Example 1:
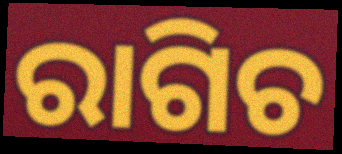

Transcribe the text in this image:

ରାଗିଚ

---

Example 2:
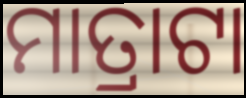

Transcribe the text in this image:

ମାତ୍ରାଟା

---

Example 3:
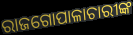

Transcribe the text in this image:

ରାଜଗୋପାଳାଚାରୀଙ୍କ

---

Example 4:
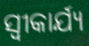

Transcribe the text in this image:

ସ୍ୱୀକାର୍ଯ୍ୟ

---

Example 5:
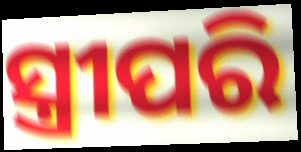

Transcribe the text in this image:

ସ୍ତ୍ରୀପରି